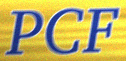
PCF